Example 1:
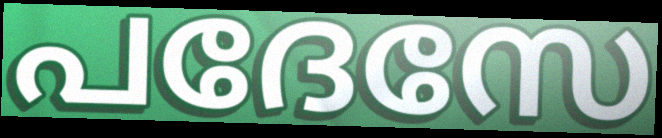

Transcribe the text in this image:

പദേസേ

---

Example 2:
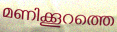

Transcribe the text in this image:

മണിക്കൂറത്തെ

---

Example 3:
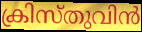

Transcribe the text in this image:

ക്രിസ്തുവിൻ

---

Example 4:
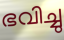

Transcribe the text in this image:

ഭവിച്ചു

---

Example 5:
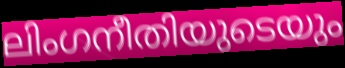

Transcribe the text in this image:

ലിംഗനീതിയുടെയും